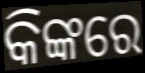
କିଙ୍କରେ